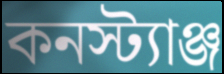
কনস্ট্যাঞ্জ